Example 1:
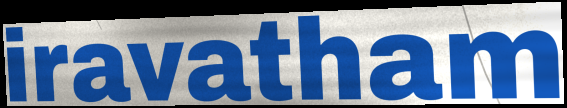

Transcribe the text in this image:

iravatham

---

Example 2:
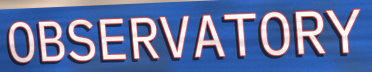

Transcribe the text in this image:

OBSERVATORY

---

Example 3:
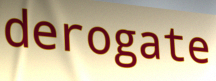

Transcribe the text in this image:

derogate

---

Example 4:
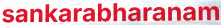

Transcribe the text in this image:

sankarabharanam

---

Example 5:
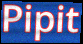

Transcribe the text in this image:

Pipit